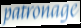
patronage